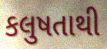
કલુષતાથી